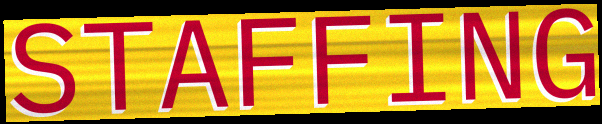
STAFFING